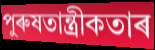
পুৰুষতান্ত্ৰীকতাৰ